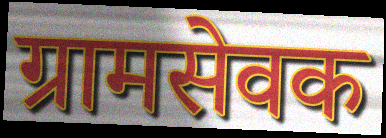
ग्रामसेवक